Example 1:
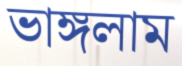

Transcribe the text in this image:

ভাঙ্গলাম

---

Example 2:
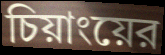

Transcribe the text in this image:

চিয়াংয়ের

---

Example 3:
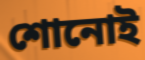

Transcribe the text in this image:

শোনোই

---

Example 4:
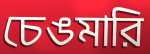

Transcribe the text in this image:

চেঙমারি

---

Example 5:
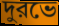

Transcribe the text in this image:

দুরভে